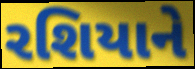
રશિયાને